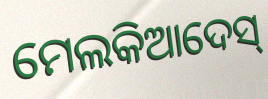
ମେଲକିଆଦେସ୍